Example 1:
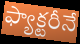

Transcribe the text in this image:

ఫ్యాక్టరీనే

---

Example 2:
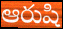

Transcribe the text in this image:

ఆరుషి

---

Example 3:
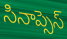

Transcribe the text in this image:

సినాప్సెస్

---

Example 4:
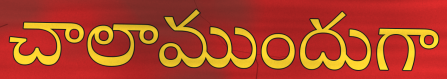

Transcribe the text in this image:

చాలాముందుగా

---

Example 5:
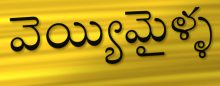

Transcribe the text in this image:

వెయ్యిమైళ్ళ